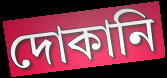
দোকানি